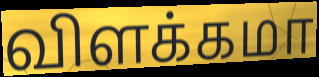
விளக்கமா